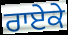
ਰਾਏਕੇ